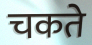
चकते